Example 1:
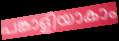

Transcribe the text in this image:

പങ്കാളിയാകാം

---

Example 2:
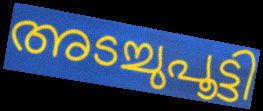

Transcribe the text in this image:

അടച്ചുപൂട്ടി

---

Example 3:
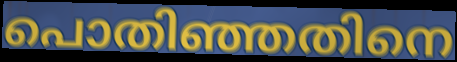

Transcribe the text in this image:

പൊതിഞ്ഞതിനെ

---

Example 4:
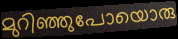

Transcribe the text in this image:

മുറിഞ്ഞുപോയൊരു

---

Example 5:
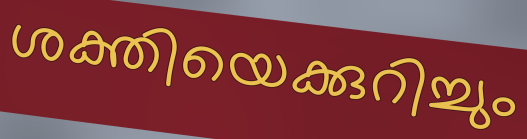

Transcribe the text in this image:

ശക്തിയെക്കുറിച്ചും